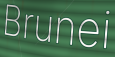
Brunei